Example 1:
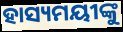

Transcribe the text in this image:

ହାସ୍ୟମୟୀଙ୍କୁ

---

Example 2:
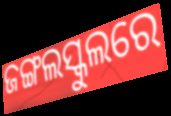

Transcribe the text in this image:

ଜଙ୍ଗଲସ୍କୁଲରେ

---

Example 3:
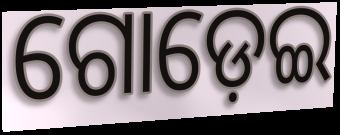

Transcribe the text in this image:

ଗୋଡ଼େଇ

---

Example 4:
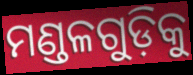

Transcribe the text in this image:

ମଣ୍ଡଳଗୁଡ଼ିକୁ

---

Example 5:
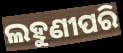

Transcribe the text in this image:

ଲହୁଣୀପରି